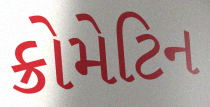
ક્રોમેટિન